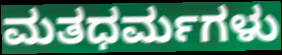
ಮತಧರ್ಮಗಳು